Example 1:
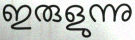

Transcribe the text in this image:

ഇരുളുന്നു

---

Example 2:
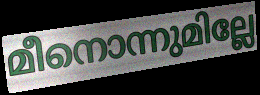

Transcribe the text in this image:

മീനൊന്നുമില്ലേ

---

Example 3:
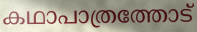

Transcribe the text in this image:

കഥാപാത്രത്തോട്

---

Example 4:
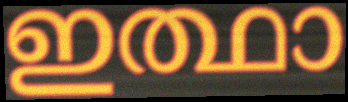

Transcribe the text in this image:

ഇത്ഥാ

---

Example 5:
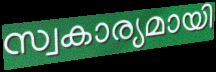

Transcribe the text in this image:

സ്വകാര്യമായി